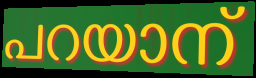
പറയാന്